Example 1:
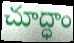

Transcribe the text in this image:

చూద్ధాం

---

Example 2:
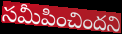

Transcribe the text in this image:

సమీపించిందని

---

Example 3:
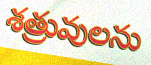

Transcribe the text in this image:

శత్రువులను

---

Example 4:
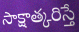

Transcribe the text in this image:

సాక్షాత్కరిస్తే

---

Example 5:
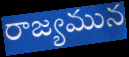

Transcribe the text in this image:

రాజ్యమున